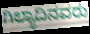
ಗಿಲ್ಯಾದಿನವರು